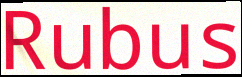
Rubus